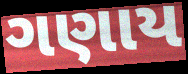
ગણાય